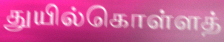
துயில்கொள்ளத்